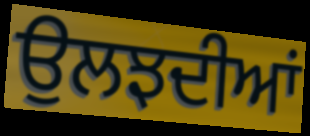
ਉਲਝਦੀਆਂ